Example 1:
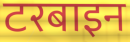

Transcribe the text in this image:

टरबाइन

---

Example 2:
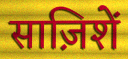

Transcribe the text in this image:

साज़िशें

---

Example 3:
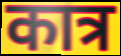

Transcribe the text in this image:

कात्र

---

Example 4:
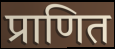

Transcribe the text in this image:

प्राणित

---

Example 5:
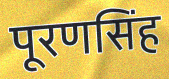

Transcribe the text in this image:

पूरणसिंह